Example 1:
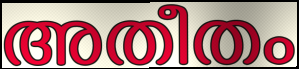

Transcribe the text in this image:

അതീതം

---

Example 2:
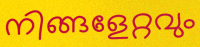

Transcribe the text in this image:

നിങ്ങളേറ്റവും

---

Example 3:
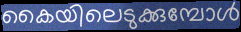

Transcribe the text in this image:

കൈയിലെടുക്കുമ്പോൾ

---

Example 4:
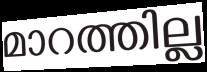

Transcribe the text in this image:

മാറത്തില്ല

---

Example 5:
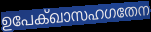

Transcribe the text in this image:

ഉപേക്ഖാസഹഗതേന